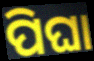
ପିଘା